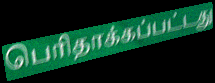
பெரிதாக்கப்பட்டது